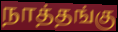
நாத்தங்கு